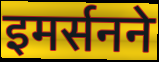
इमर्सनने